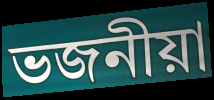
ভজনীয়া